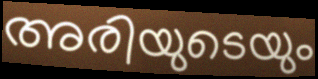
അരിയുടെയും